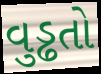
વુડ્ઢતો